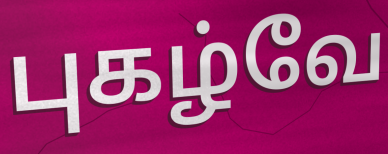
புகழ்வே